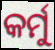
କର୍ମୁ